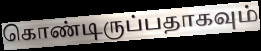
கொண்டிருப்பதாகவும்